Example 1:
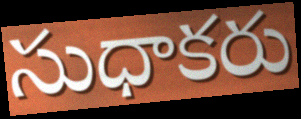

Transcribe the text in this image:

సుధాకరు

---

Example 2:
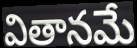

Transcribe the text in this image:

వితానమే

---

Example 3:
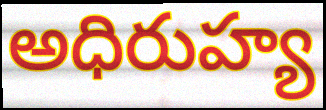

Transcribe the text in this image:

అధిరుహ్య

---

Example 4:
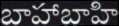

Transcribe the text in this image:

బాహాబాహి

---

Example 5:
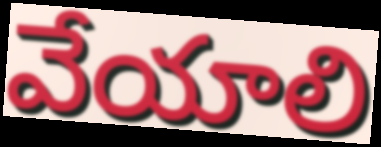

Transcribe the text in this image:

వేయాలి